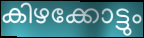
കിഴക്കോട്ടും